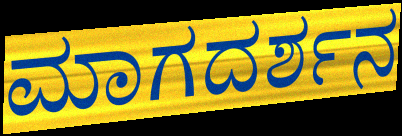
ಮಾಗದರ್ಶನ